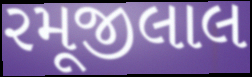
રમૂજીલાલ